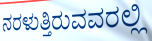
ನರಳುತ್ತಿರುವವರಲ್ಲಿ